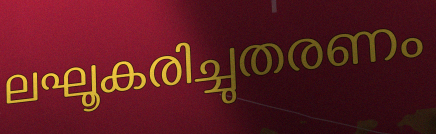
ലഘൂകരിച്ചുതരണം